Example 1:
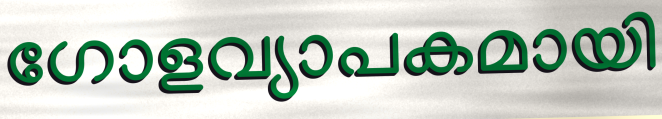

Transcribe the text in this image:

ഗോളവ്യാപകമായി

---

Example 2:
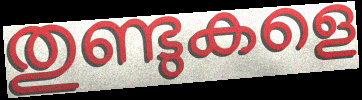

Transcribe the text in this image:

തുണ്ടുകളെ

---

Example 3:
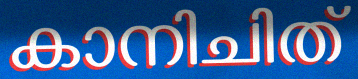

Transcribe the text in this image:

കാനിചിത്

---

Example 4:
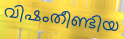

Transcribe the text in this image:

വിഷംതീണ്ടിയ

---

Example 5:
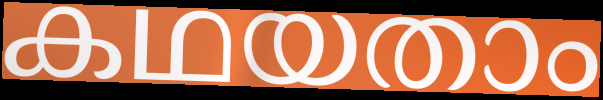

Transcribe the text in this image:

കഥയതാം